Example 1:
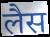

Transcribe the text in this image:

लैस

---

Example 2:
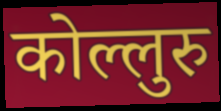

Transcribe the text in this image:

कोल्लुरु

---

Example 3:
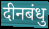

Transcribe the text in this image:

दीनबंधु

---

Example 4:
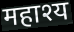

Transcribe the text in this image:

महाश्य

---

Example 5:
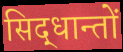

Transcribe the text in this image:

सिद्धान्तों